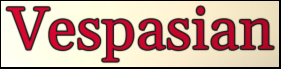
Vespasian